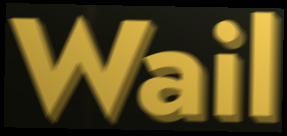
Wail